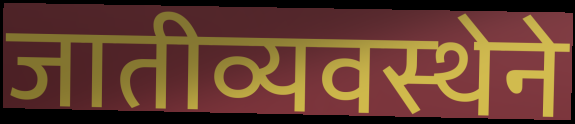
जातीव्यवस्थेने